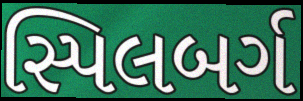
સ્પિલબર્ગ